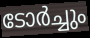
ടോർച്ചും